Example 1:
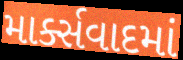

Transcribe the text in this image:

માર્ક્સવાદમાં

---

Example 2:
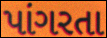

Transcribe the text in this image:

પાંગરતા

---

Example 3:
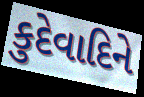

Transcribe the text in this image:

કુદેવાદિને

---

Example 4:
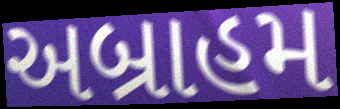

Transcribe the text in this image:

અબ્રાહમ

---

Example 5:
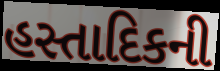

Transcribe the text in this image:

હસ્તાદિકની